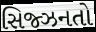
સિજ્ઝનતો